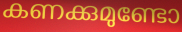
കണക്കുമുണ്ടോ